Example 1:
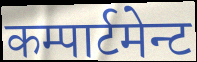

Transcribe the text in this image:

कम्पार्टमेन्ट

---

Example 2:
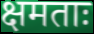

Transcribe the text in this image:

क्षमताः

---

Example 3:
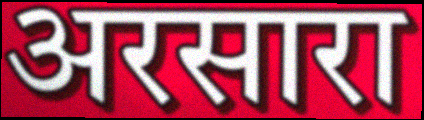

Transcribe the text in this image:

अरसारा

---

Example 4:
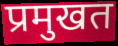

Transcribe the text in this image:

प्रमुखत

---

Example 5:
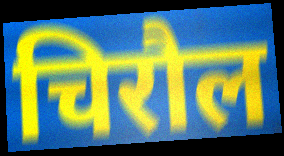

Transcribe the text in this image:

चिरौल